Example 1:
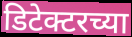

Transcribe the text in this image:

डिटेक्टरच्या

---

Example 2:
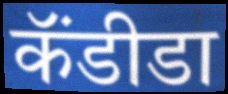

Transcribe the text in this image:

कॅंडीडा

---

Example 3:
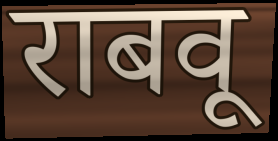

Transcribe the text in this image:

राबवू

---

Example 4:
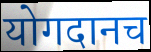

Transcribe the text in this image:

योगदानच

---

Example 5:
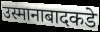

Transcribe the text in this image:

उस्मानाबादकडे